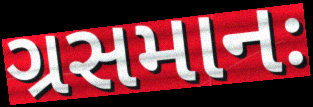
ગ્રસમાનઃ